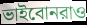
ভাইবোনরাও